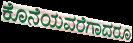
ಕೊನೆಯವರೆಗಾದರೂ